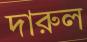
দারুল